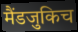
मैंडजुकिच